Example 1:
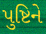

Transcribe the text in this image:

પુષ્ટિને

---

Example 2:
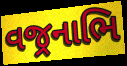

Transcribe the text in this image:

વજ્રનાભિ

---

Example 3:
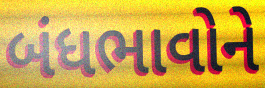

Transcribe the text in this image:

બંધભાવોને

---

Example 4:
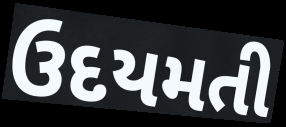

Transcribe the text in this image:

ઉદયમતી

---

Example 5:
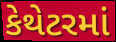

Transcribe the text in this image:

કેથેટરમાં